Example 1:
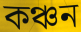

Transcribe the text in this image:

কঞ্চন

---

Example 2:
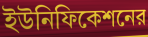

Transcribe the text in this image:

ইউনিফিকেশনের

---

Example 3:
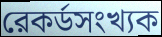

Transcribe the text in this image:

রেকর্ডসংখ্যক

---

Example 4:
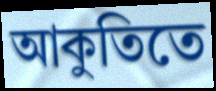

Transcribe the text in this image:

আকুতিতে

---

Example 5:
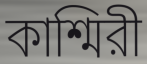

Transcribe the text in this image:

কাশ্মিরী